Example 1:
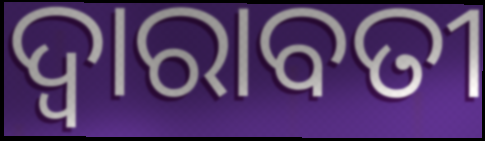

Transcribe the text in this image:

ଦ୍ଵାରାବତୀ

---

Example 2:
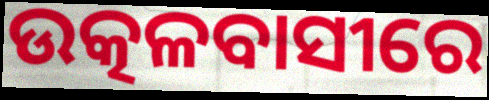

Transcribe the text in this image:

ଉତ୍କଳବାସୀରେ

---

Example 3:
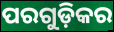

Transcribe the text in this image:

ପରଗୁଡ଼ିକର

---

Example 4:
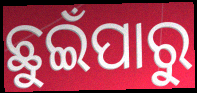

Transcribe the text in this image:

ଛୁଇଁପାରୁ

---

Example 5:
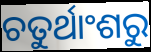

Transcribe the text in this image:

ଚତୁର୍ଥାଂଶରୁ